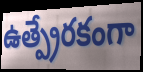
ఉత్ప్రేరకంగా